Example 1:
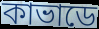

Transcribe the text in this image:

কাভাডে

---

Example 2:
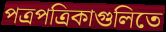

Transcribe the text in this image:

পত্রপত্রিকাগুলিতে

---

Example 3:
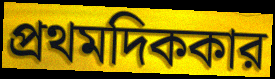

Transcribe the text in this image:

প্রথমদিককার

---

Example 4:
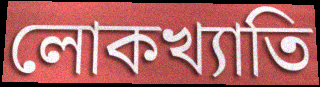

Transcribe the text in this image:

লোকখ্যাতি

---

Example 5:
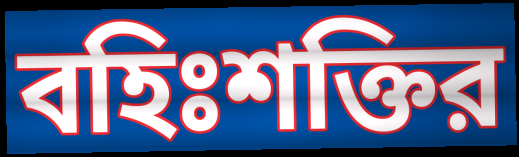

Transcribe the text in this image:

বহিঃশক্তির